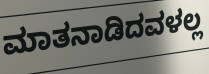
ಮಾತನಾಡಿದವಳಲ್ಲ